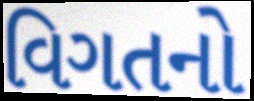
વિગતનો